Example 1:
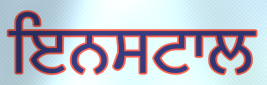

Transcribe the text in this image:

ਇਨਸਟਾਲ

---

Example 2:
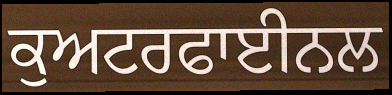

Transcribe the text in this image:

ਕੁਅਟਰਫਾਈਨਲ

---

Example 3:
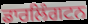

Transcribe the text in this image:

ਡਾਰਲਿੰਗਟਨ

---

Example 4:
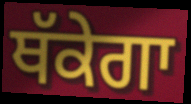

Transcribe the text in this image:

ਥੱਕੇਗਾ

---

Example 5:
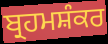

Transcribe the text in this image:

ਬ੍ਰਹਮਸ਼ੰਕਰ